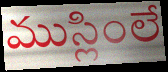
ముస్లింలే